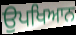
ਉਪਖਿਆਨ